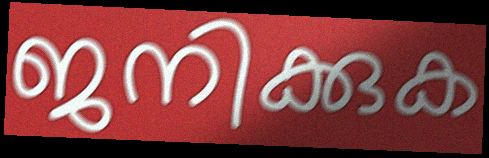
ജനിക്കുക